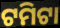
ଟମିଟା